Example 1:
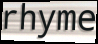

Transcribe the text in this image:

rhyme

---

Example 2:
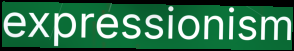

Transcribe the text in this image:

expressionism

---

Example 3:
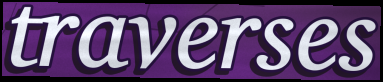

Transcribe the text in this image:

traverses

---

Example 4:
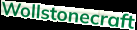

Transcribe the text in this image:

Wollstonecraft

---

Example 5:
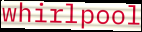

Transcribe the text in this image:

whirlpool